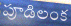
పూడిలంక